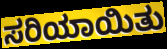
ಸರಿಯಾಯಿತು